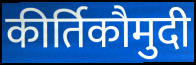
कीर्तिकौमुदी